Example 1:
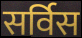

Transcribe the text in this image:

सर्विस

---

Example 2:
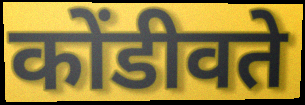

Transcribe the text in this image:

कोंडीवते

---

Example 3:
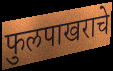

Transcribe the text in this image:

फुलपाखराचे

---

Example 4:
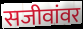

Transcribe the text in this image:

सजीवांवर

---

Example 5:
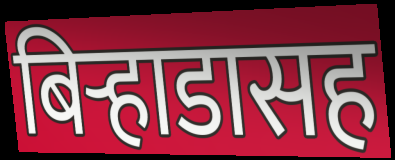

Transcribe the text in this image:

बिऱ्हाडासह